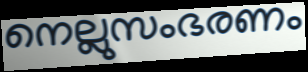
നെല്ലുസംഭരണം